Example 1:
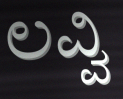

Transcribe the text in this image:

ಲವ್ವಿ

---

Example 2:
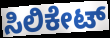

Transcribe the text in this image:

ಸಿಲಿಕೇಟ್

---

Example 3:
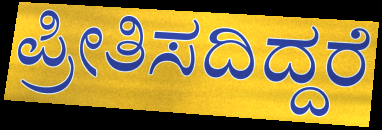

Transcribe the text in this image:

ಪ್ರೀತಿಸದಿದ್ದರೆ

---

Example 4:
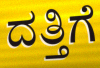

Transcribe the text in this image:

ದತ್ತಿಗೆ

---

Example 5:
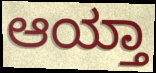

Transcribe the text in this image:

ಆಯ್ತಾ